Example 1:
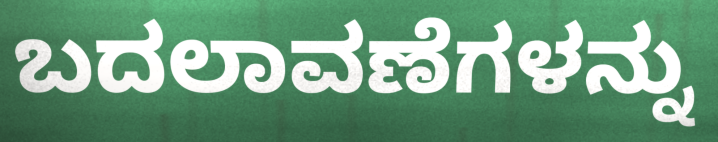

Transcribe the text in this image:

ಬದಲಾವಣೆಗಳನ್ನು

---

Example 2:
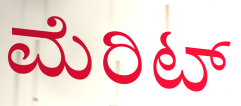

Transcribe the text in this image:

ಮೆರಿಟ್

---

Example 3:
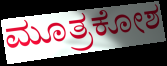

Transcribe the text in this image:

ಮೂತ್ರಕೋಶ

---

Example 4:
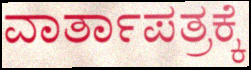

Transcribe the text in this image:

ವಾರ್ತಾಪತ್ರಕ್ಕೆ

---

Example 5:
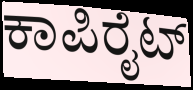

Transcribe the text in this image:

ಕಾಪಿರೈಟ್